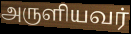
அருளியவர்